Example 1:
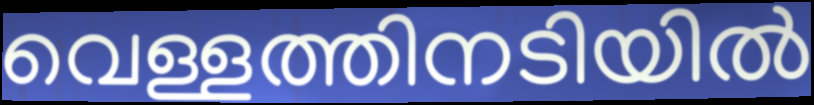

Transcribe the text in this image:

വെള്ളത്തിനടിയിൽ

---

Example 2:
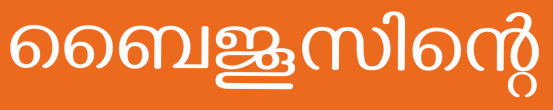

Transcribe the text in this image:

ബൈജൂസിന്റെ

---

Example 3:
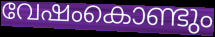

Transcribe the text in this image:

വേഷംകൊണ്ടും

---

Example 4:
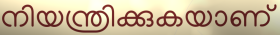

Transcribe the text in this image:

നിയന്ത്രിക്കുകയാണ്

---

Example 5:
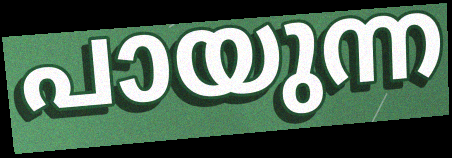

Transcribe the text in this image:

പായുന്ന